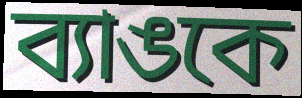
ব্যাঙকে